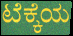
ಟೆಕ್ಕೆಯ